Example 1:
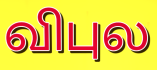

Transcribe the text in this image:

விபுல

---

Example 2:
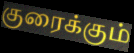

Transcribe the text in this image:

குரைக்கும்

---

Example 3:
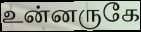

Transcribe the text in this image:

உன்னருகே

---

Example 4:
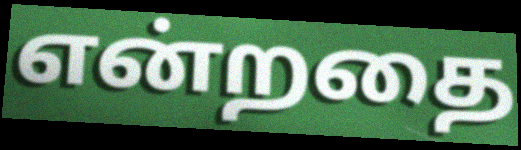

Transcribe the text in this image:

என்றதை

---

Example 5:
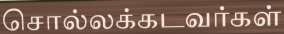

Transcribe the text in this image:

சொல்லக்கடவர்கள்